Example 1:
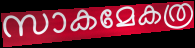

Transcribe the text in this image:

സാകമേകത്ര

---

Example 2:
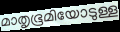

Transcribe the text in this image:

മാതൃഭൂമിയോടുള്ള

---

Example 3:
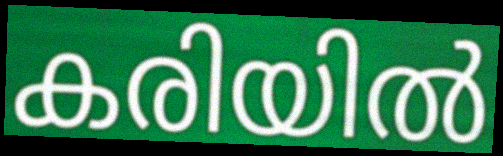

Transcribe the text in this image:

കരിയിൽ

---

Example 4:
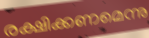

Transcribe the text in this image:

രക്ഷിക്കണമെന്നു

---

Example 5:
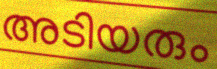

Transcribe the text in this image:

അടിയരും